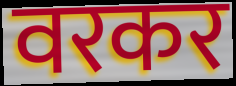
वरकर